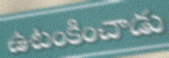
ఉటంకించాడు